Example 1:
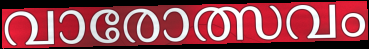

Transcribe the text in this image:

വാരോത്സവം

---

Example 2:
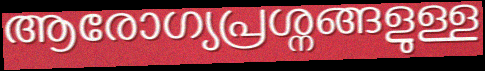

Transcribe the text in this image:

ആരോഗ്യപ്രശ്നങ്ങളുള്ള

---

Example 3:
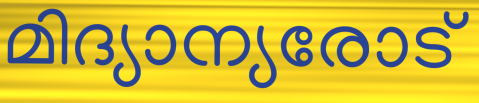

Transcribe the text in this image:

മിദ്യാന്യരോട്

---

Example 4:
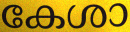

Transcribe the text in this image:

കേശാ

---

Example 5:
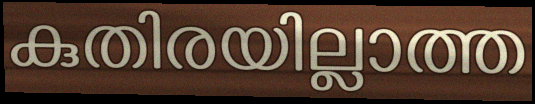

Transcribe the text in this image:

കുതിരയില്ലാത്ത